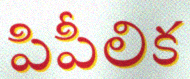
పిపీలిక